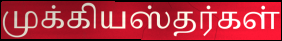
முக்கியஸ்தர்கள்